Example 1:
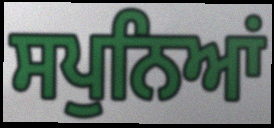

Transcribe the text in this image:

ਸਪੁਨਿਆਂ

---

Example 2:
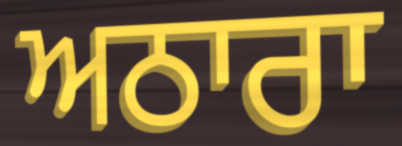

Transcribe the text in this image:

ਅਠਾਰਾ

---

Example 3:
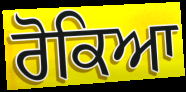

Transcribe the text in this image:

ਰੋਕਿਆ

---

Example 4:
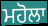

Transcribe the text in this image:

ਮਹੋਲਾ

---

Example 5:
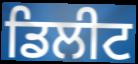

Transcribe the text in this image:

ਡਿਲੀਟ